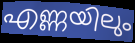
എണ്ണയിലും